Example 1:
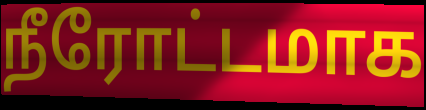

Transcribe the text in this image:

நீரோட்டமாக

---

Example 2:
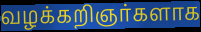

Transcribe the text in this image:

வழக்கறிஞர்களாக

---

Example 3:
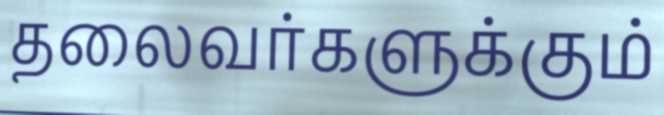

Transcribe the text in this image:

தலைவர்களுக்கும்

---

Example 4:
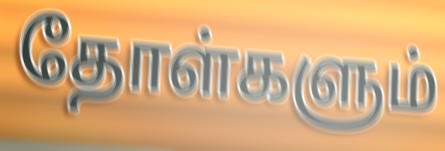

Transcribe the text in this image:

தோள்களும்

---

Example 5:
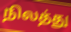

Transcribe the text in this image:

நிலத்து